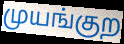
முயங்குற